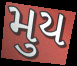
મુય